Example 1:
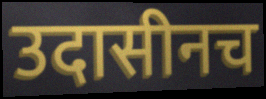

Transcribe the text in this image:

उदासीनच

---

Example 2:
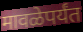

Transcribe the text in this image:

मावळेपर्यंत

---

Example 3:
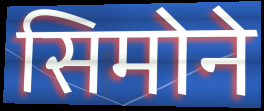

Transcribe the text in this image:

सिमोने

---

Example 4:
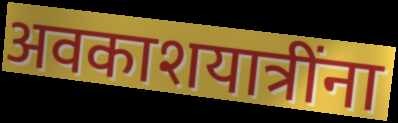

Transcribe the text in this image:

अवकाशयात्रींना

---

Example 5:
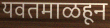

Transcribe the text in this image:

यवतमाळहून